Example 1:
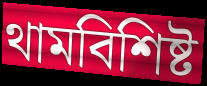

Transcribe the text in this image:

থামবিশিষ্ট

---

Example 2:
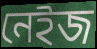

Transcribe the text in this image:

নেইজ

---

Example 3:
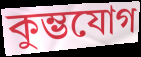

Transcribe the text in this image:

কুম্ভযোগ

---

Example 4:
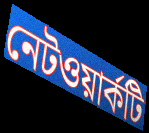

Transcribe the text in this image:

নেটওয়ার্কটি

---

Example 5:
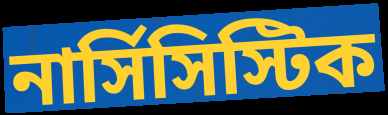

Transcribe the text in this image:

নার্সিসিস্টিক